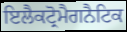
ਇਲੈਕਟ੍ਰੋਮੈਗਨੈਟਿਕ